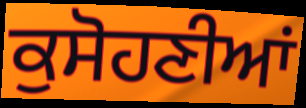
ਕੁਸੋਹਣੀਆਂ